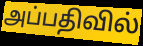
அப்பதிவில்